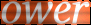
ower